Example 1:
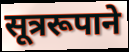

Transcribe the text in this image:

सूत्ररूपाने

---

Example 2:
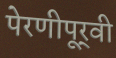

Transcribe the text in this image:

पेरणीपूर्वी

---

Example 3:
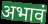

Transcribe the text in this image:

अभावं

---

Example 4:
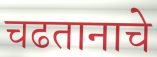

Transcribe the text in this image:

चढतानाचे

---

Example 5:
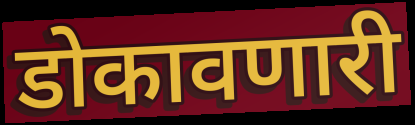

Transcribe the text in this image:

डोकावणारी